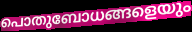
പൊതുബോധങ്ങളെയും